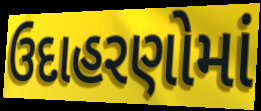
ઉદાહરણોમાં